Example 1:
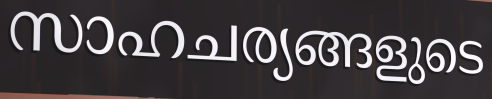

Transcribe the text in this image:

സാഹചര്യങ്ങളുടെ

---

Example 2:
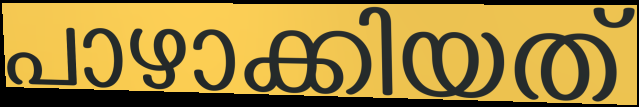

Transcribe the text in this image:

പാഴാക്കിയത്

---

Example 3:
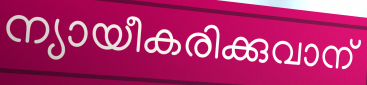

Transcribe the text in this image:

ന്യായീകരിക്കുവാന്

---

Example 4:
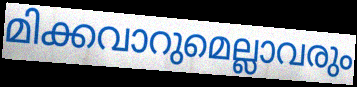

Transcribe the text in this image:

മിക്കവാറുമെല്ലാവരും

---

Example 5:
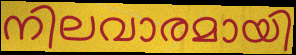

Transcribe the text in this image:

നിലവാരമായി